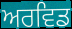
ਅਰਵਿਡ